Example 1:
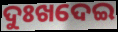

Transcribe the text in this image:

ଦୁଃଖଦେଇ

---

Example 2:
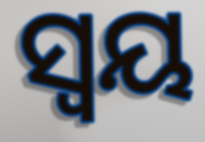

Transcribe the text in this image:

ସ୍ବୟ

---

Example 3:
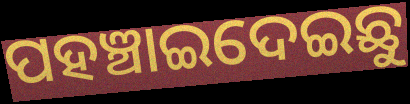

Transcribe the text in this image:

ପହଞ୍ଚାଇଦେଇଛୁ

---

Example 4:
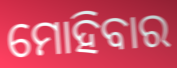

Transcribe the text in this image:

ମୋହିବାର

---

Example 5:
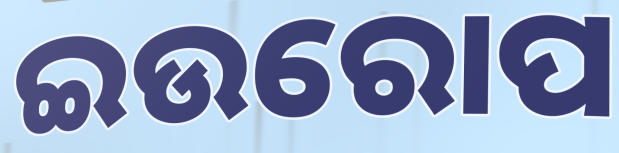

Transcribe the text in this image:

ଇଉରୋପ